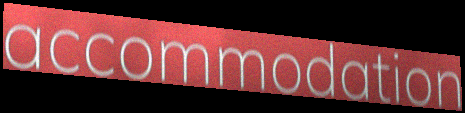
accommodation